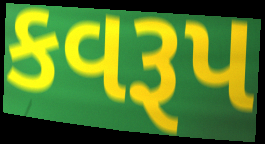
કવરૂપ